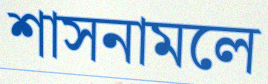
শাসনামলে